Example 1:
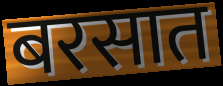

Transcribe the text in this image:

बरसात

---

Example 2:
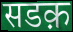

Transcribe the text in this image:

सडक़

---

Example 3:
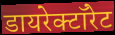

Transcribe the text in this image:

डायरेक्टॉरेट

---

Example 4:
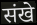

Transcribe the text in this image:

संखे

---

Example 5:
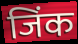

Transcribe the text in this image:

जिंक